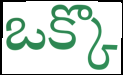
ఒక్కొ